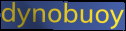
dynobuoy